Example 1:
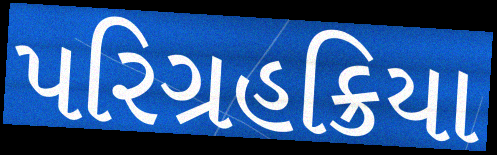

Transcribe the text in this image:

પરિગ્રહક્રિયા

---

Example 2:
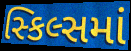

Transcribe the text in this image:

સ્કિલ્સમાં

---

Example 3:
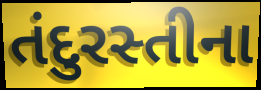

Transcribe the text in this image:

તંદુરસ્તીના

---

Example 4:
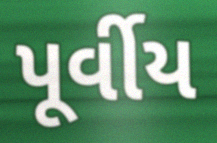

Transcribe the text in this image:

પૂર્વીય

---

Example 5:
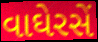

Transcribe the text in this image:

વાઘેરસેં